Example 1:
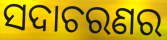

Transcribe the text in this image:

ସଦାଚରଣର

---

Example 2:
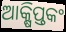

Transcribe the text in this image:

ଆକ୍ଷିପ୍ତକଂ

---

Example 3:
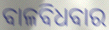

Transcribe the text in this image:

ବାଳବିଧବାର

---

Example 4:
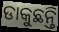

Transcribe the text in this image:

ଡାକୁଛନ୍ତି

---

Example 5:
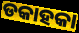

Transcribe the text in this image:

ଡକାହକା